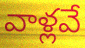
వాళ్లవే